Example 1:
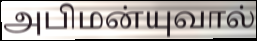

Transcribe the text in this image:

அபிமன்யுவால்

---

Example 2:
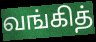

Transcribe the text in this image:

வங்கித்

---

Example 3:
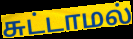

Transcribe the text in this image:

சுட்டாமல்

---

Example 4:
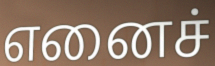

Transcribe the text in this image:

எனைச்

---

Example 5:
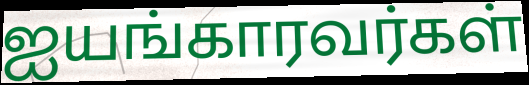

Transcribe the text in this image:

ஐயங்காரவர்கள்